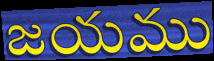
జయము